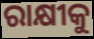
ରାକ୍ଷୀକୁ